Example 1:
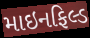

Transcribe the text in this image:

માઇનફિલ્ડ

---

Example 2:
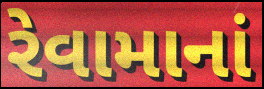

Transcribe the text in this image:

રેવામાનાં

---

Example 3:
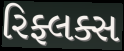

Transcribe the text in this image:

રિફ્લક્સ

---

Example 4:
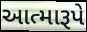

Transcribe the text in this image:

આત્મારૂપે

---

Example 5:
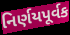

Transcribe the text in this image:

નિર્ણયપૂર્વક